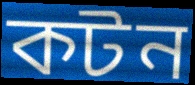
কটন